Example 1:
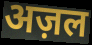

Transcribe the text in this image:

अज़ल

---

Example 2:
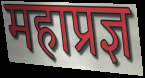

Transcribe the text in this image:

महाप्रज्ञ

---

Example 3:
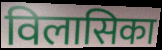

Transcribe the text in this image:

विलासिका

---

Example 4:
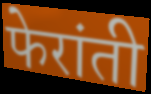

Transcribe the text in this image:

फेरांती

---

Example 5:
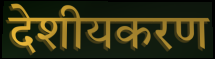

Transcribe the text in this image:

देशीयकरण